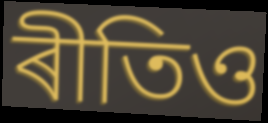
ৰীতিও